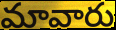
మావారు